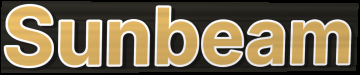
Sunbeam